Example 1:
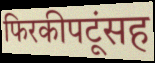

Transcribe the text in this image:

फिरकीपटूंसह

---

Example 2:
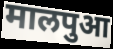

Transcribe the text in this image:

मालपुआ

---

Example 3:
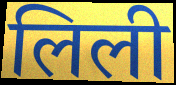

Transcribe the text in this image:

लिली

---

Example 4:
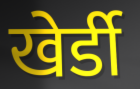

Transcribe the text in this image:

खेर्डी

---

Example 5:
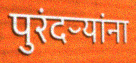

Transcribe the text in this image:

पुरंदऱ्यांना